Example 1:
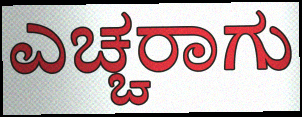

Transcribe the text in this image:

ಎಚ್ಚರಾಗು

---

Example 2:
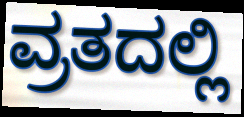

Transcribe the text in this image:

ವ್ರತದಲ್ಲಿ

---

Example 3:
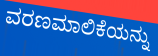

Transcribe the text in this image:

ವರಣಮಾಲಿಕೆಯನ್ನು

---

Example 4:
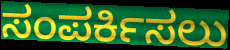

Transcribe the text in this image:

ಸಂಪರ್ಕಿಸಲು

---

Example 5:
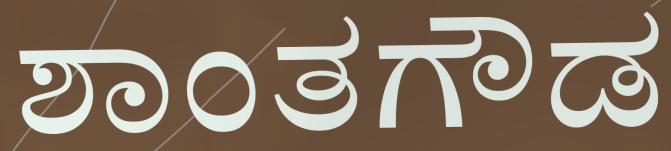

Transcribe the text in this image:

ಶಾಂತಗೌಡ